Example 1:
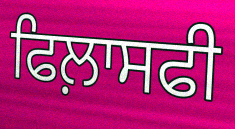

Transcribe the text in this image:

ਫਿਲ਼ਾਸਫੀ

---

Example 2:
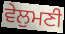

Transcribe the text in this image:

ਵੇਲੁਮਣੀ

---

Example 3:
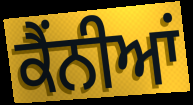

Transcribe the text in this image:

ਕੈਂਨੀਆਂ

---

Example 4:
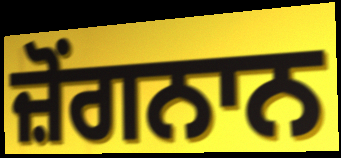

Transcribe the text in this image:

ਜ਼ੋਂਗਨਾਨ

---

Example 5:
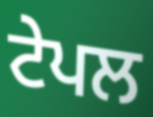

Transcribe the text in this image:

ਟੇਪਲ